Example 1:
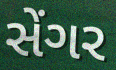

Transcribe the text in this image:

સેંગર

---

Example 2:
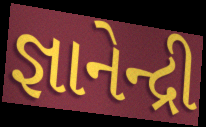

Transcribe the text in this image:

જ્ઞાનેન્દ્રી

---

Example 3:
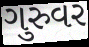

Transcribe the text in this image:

ગુરુવર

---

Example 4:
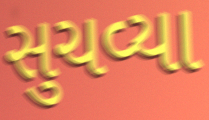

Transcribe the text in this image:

સુચવ્યા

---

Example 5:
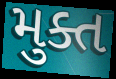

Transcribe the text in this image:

મુક્ત